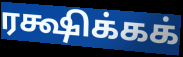
ரக்ஷிக்கக்